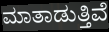
ಮಾತಾಡುತ್ತಿವೆ